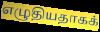
எழுதியதாகக்